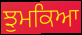
ਝੁਮਕਿਆ